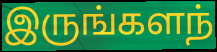
இருங்களந்